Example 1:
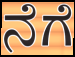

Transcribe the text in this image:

ನೆಗೆ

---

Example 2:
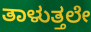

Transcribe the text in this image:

ತಾಳುತ್ತಲೇ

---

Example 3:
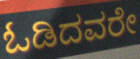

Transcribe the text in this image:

ಓಡಿದವರೇ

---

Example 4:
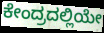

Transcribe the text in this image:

ಕೇಂದ್ರದಲ್ಲಿಯೇ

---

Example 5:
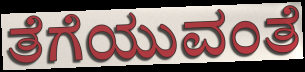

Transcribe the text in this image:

ತೆಗೆಯುವಂತೆ